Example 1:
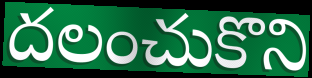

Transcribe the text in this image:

దలంచుకొని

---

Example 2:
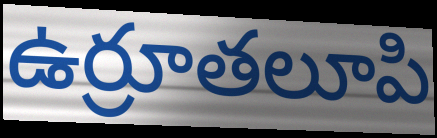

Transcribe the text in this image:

ఉర్రూతలూపి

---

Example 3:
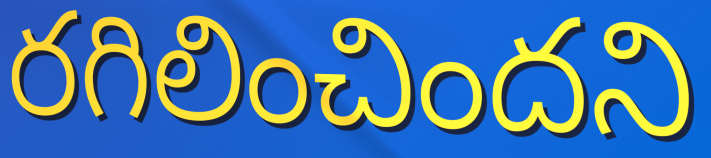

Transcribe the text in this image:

రగిలించిందని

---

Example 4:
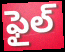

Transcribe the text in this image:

ఫైల్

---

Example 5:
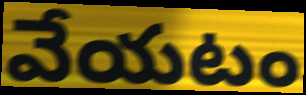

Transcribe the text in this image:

వేయటం